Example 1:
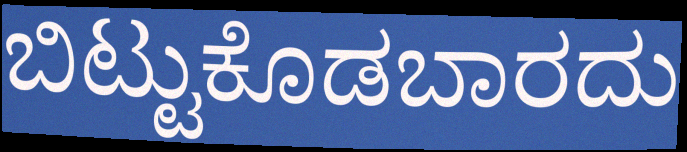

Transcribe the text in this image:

ಬಿಟ್ಟುಕೊಡಬಾರದು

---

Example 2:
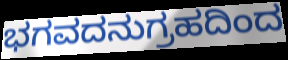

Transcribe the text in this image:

ಭಗವದನುಗ್ರಹದಿಂದ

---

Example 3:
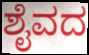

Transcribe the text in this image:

ಶೈವದ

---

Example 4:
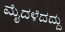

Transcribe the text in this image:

ಮೈದಳೆದದ್ದು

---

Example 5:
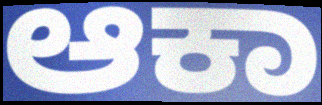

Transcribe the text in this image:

ಆಕಾ